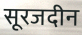
सूरजदीन